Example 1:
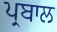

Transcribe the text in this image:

ਪ੍ਰਬਾਲ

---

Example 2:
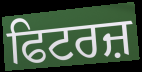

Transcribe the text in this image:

ਫਿਟਰਜ਼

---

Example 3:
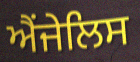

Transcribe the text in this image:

ਐਂਜੇਲਿਸ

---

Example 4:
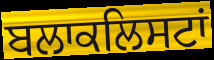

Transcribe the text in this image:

ਬਲਾਕਲਿਸਟਾਂ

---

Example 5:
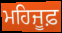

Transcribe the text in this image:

ਮਹਿਜੂਫ਼